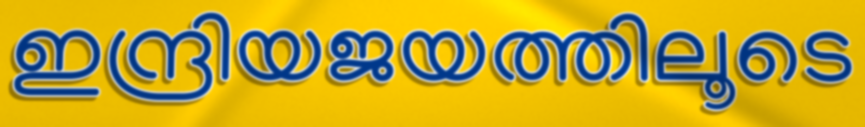
ഇന്ദ്രിയജയത്തിലൂടെ